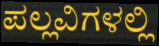
ಪಲ್ಲವಿಗಳಲ್ಲಿ